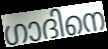
ഗാദിനെ